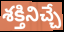
శక్తినిచ్చే